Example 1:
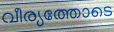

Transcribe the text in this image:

വീര്യത്തോടെ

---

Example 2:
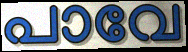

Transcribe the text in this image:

പാവേ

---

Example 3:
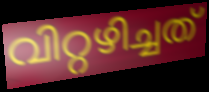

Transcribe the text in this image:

വിറ്റഴിച്ചത്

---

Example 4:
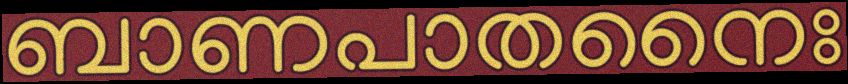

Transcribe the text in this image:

ബാണപാതനൈഃ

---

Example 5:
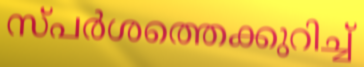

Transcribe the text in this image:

സ്പർശത്തെക്കുറിച്ച്